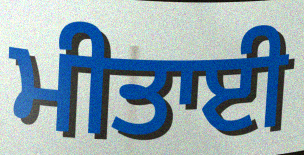
ਮੀਤਾਈ